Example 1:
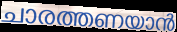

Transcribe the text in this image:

ചാരത്തണയാൻ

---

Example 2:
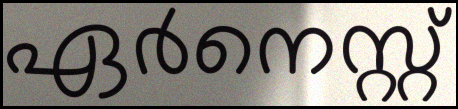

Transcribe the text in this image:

ഏർനെസ്റ്റ്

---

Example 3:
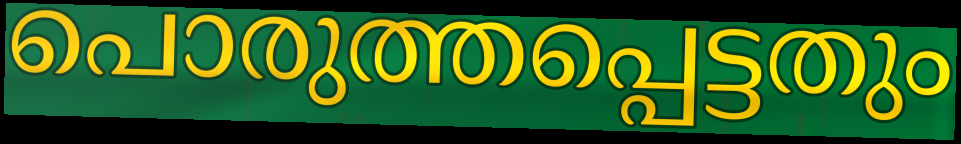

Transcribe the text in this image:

പൊരുത്തപ്പെട്ടതും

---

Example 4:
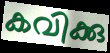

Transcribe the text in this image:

കവിക്കു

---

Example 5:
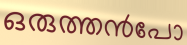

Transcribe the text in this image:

ഒരുത്തൻപോ